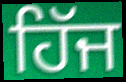
ਹਿੱਜ